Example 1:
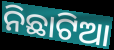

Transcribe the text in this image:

ନିଛାଟିଆ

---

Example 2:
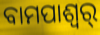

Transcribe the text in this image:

ବାମପାଶ୍ୱର୍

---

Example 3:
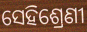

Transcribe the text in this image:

ସେହିଶ୍ରେଣୀ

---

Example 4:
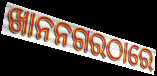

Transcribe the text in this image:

ଖାନନଗରଠାରେ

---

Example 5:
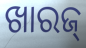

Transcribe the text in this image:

ଖାରଜ୍